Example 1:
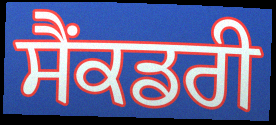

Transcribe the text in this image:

ਸੈਂਕਡਰੀ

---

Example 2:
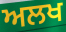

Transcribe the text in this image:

ਅਲਖ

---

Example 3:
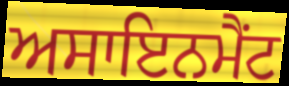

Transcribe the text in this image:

ਅਸਾਇਨਮੈਂਟ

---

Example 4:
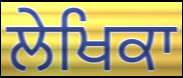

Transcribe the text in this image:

ਲੇਖਿਕਾ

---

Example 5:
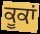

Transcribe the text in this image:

ਕੂਕਾਂ